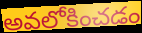
అవలోకించడం